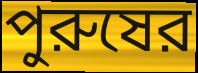
পুরুষের